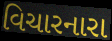
વિચારનારા